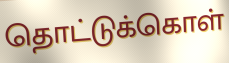
தொட்டுக்கொள்